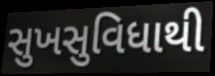
સુખસુવિધાથી